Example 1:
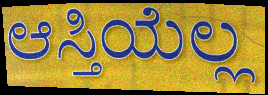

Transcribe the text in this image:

ಆಸ್ತಿಯೆಲ್ಲ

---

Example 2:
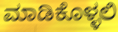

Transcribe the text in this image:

ಮಾಡಿಕೊಳ್ಳಲಿ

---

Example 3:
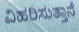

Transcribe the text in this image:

ವಿಹರಿಸುತ್ತಾನೆ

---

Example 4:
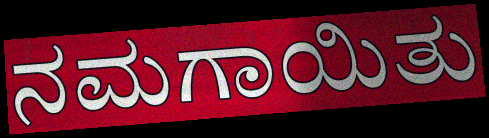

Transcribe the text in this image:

ನಮಗಾಯಿತು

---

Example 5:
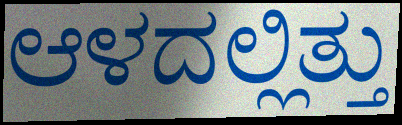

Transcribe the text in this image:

ಆಳದಲ್ಲಿತ್ತು